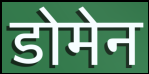
डोमेन